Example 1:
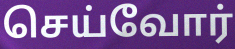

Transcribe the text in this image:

செய்வோர்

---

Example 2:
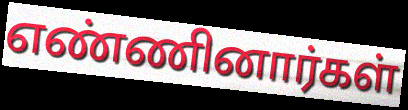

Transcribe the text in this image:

எண்ணினார்கள்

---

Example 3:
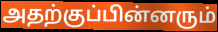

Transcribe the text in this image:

அதற்குப்பின்னரும்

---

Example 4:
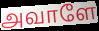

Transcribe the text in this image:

அவாளே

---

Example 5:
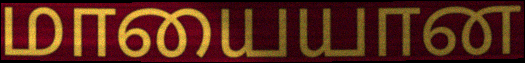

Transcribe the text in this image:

மாயையான